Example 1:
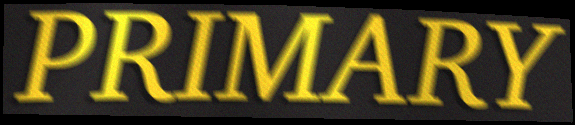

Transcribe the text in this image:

PRIMARY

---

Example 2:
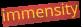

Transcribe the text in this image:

immensity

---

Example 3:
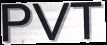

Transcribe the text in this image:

PVT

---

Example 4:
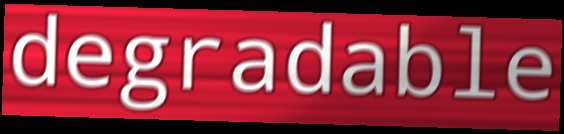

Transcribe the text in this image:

degradable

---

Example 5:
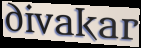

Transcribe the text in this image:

divakar